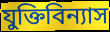
যুক্তিবিন্যাস